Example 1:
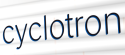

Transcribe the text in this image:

cyclotron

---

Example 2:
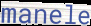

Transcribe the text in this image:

manele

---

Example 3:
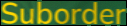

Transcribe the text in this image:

Suborder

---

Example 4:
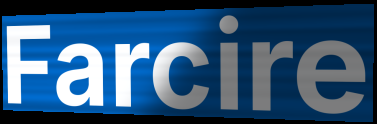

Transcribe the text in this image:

Farcire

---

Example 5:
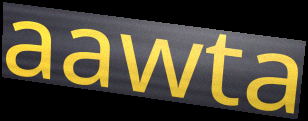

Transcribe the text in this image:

aawta